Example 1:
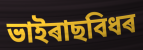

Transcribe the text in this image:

ভাইৰাছবিধৰ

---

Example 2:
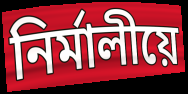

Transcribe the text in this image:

নিৰ্মালীয়ে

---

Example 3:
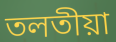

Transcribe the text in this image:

তলতীয়া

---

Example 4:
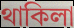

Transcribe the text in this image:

থাকিলা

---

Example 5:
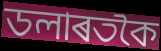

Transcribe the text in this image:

ডলাৰতকৈ